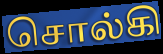
சொல்கி